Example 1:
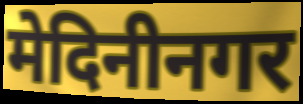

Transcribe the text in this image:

मेदिनीनगर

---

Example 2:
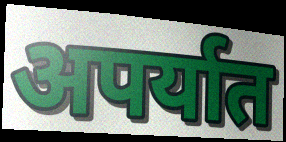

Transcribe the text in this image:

अपर्यात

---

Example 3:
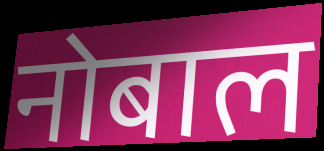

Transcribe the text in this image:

नोबाल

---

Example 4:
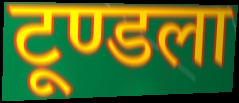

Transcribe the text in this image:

टूण्डला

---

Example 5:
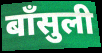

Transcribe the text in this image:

बाँसुली